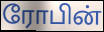
ரோபின்